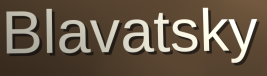
Blavatsky